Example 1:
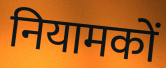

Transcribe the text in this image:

नियामकों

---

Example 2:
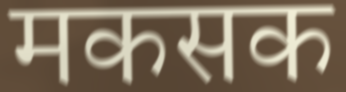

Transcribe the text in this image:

मकसक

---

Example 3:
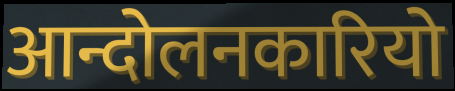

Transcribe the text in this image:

आन्दोलनकारियो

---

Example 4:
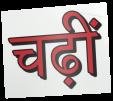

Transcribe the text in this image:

चढ़ीं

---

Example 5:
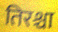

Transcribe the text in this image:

तिरश्चा